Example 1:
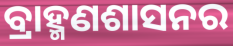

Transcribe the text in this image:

ବ୍ରାହ୍ମଣଶାସନର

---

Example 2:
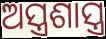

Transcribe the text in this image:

ଅସ୍ତ୍ରଶାସ୍ତ୍ର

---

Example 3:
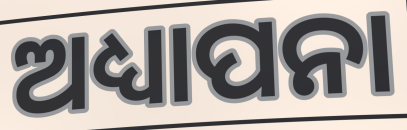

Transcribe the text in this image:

ଅଧ୍ୟାପନା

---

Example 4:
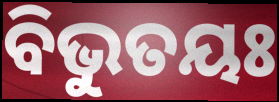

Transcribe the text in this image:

ବିଭୁତୟଃ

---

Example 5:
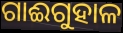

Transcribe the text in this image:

ଗାଈଗୁହାଳ